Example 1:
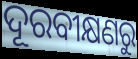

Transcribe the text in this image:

ଦୂରବୀକ୍ଷଣରୁ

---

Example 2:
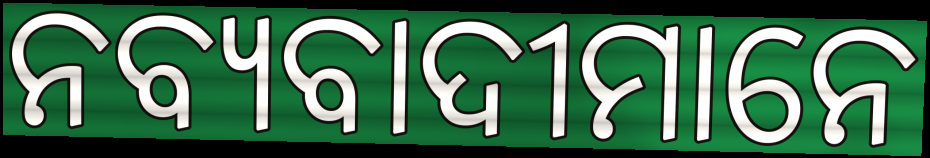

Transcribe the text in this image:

ନବ୍ୟବାଦୀମାନେ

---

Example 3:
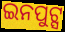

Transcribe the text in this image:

ଇନପୁଟ୍ସ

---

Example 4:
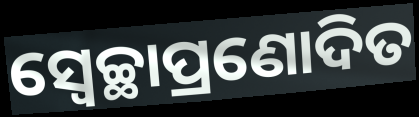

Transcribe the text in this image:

ସ୍ୱେଚ୍ଛାପ୍ରଣୋଦିତ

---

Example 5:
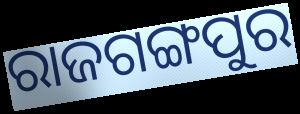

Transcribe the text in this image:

ରାଜଗଙ୍ଗପୁର